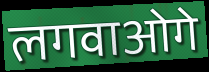
लगवाओगे